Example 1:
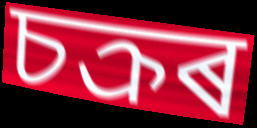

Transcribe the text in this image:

চক্ৰৰ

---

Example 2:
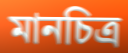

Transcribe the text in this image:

মানচিত্ৰ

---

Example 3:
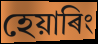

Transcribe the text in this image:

হেয়াৰিং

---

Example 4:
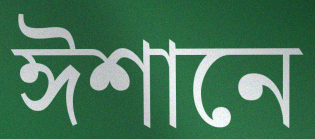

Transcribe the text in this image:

ঈশানে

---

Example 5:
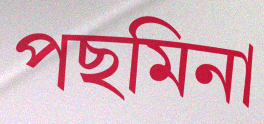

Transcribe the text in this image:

পছমিনা